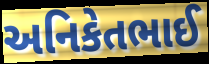
અનિકેતભાઈ